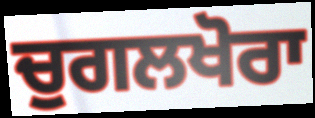
ਚੁਗਲਖੋਰਾ